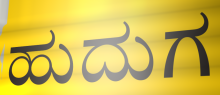
ಹುದುಗ